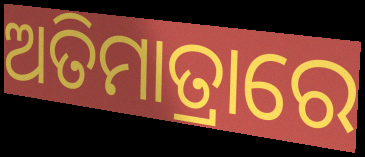
ଅତିମାତ୍ରାରେ